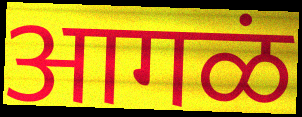
आगळं